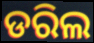
ଡରିଲ